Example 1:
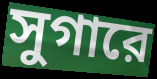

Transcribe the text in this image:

সুগারে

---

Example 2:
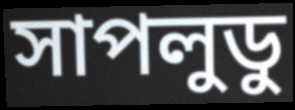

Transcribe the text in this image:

সাপলুডু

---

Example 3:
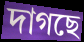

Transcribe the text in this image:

দাগছে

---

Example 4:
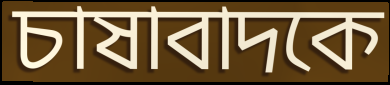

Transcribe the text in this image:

চাষাবাদকে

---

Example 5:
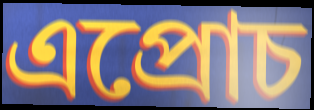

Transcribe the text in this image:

এপ্রোচ